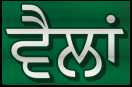
ਵੈਲਾਂ